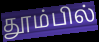
தூம்பில்